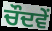
ਚੌਦਵੇਂ